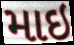
માઇ